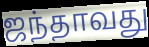
ஜந்தாவது